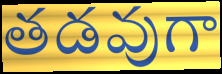
తడవుగా